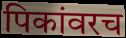
पिकांवरच